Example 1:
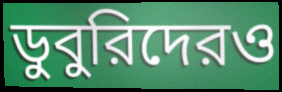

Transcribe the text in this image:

ডুবুরিদেরও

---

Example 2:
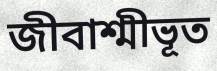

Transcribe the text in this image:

জীবাশ্মীভূত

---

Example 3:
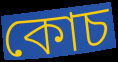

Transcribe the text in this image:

কোচ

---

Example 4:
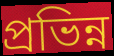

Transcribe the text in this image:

প্রভিন্ন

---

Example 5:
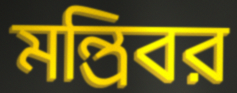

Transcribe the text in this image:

মন্ত্রিবর